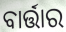
ବାର୍ତ୍ତାର